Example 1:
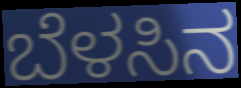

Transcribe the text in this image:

ಬೆಳಸಿನ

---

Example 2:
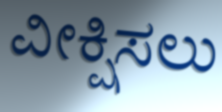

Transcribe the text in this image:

ವೀಕ್ಷಿಸಲು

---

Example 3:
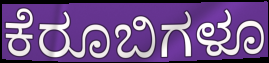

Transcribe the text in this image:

ಕೆರೂಬಿಗಳೂ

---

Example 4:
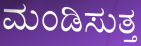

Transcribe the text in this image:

ಮಂಡಿಸುತ್ತ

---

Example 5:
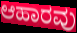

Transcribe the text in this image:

ಆಹಾರವು